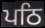
ਪਠਿ